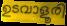
ഉടവാളൂരി